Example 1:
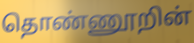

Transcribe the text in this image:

தொண்ணூறின்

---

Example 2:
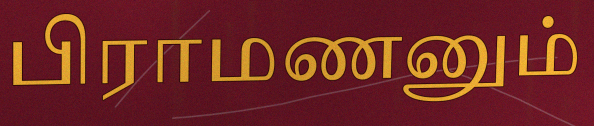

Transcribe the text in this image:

பிராமணனும்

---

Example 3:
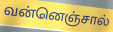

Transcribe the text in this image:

வன்னெஞ்சால்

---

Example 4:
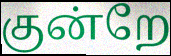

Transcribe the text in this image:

குன்றே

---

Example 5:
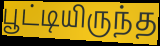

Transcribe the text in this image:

பூட்டியிருந்த